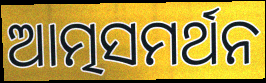
ଆତ୍ମସମର୍ଥନ